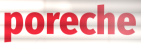
poreche